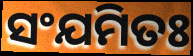
ସଂଯମିତଃ